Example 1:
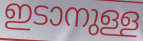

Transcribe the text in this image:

ഇടാനുള്ള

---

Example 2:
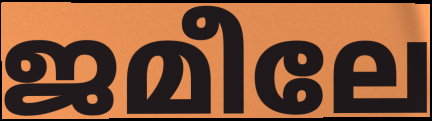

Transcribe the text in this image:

ജമീലേ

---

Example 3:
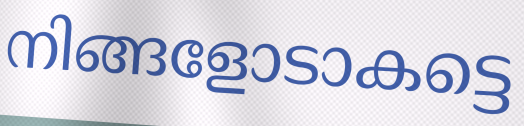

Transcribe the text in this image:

നിങ്ങളോടാകട്ടെ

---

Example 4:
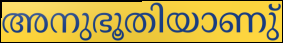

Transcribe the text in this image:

അനുഭൂതിയാണു്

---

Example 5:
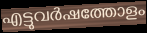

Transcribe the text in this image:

എട്ടുവർഷത്തോളം